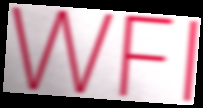
WFI